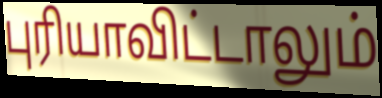
புரியாவிட்டாலும்